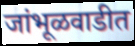
जांभूळवाडीत